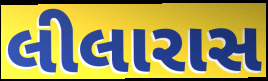
લીલારાસ